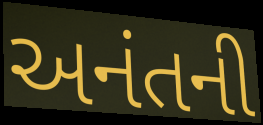
અનંતની